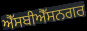
ਐੱਸਬੀਐੱਸਨਗਰ